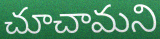
చూచామని